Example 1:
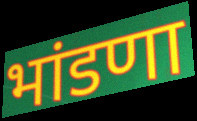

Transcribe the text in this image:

भांडणा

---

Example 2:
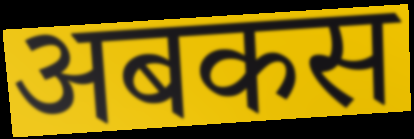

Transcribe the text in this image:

अबकस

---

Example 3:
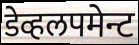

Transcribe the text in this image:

डेव्हलपमेन्ट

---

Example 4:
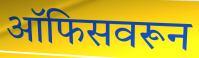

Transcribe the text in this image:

ऑफिसवरून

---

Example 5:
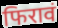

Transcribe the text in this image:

फिरावं